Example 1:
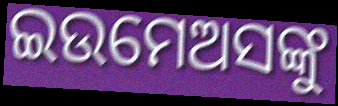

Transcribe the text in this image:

ଇଉମେଅସଙ୍କୁ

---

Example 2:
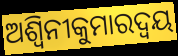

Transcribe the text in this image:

ଅଶ୍ୱିନୀକୁମାରଦ୍ୱୟ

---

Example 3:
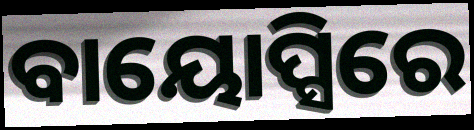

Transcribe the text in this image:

ବାୟୋପ୍ସିରେ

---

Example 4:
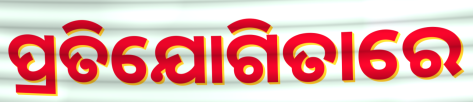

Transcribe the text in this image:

ପ୍ରତିଯୋଗିତାରେ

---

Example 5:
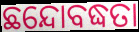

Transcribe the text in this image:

ଛନ୍ଦୋବଦ୍ଧତା